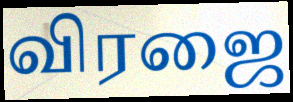
விரஜை